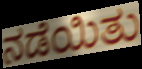
ನಡೆಯಿತು